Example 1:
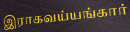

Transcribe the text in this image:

இராகவய்யங்கார்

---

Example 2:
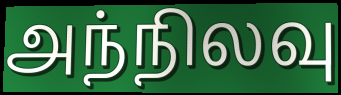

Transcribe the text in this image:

அந்நிலவு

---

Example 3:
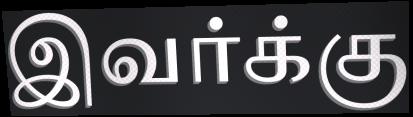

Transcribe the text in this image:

இவர்க்கு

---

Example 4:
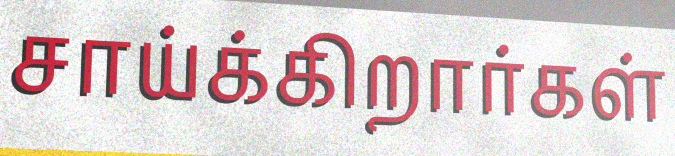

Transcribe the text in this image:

சாய்க்கிறார்கள்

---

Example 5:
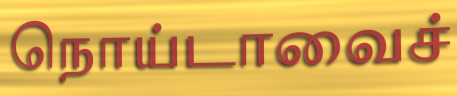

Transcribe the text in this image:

நொய்டாவைச்